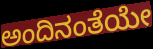
ಅಂದಿನಂತೆಯೇ